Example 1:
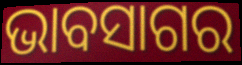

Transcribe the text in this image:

ଭାବସାଗର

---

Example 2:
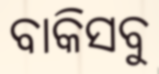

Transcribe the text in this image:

ବାକିସବୁ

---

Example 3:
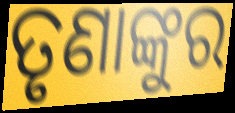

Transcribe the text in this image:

ତୃଣାଙ୍କୁର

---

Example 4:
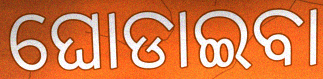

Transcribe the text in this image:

ଘୋଡାଇବା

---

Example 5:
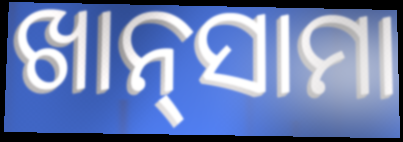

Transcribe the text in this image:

ଖାନ୍‍ସାମା